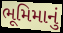
ભૂમિમાનું